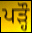
ਪੜ੍ਹੌ